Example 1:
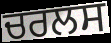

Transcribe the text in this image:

ਚਰਲਸ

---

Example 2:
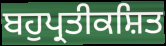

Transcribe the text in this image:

ਬਹੁਪ੍ਰਤੀਕਸ਼ਿਤ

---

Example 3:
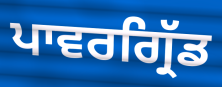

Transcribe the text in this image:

ਪਾਵਰਗ੍ਰਿੱਡ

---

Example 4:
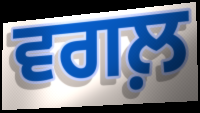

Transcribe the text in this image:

ਵਗਲ਼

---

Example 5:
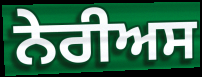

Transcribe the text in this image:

ਨੇਰੀਅਸ